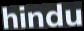
hindu